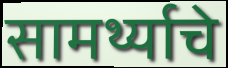
सामर्थ्याचे